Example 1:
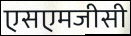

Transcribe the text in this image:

एसएमजीसी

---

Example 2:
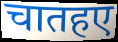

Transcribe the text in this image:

चातहए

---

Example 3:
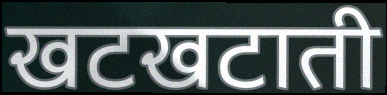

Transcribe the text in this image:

खटखटाती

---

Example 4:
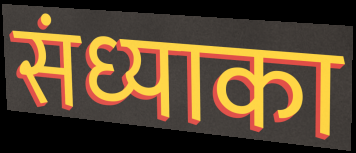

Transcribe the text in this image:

संध्याका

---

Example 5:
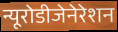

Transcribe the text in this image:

न्यूरोडीजेनेरेशन